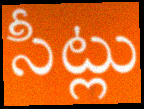
సీట్లు